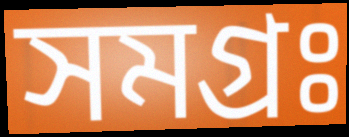
সমগ্রঃ